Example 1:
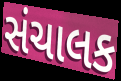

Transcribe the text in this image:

સંચાલક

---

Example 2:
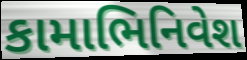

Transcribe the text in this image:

કામાભિનિવેશ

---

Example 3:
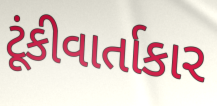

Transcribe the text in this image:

ટૂંકીવાર્તાકાર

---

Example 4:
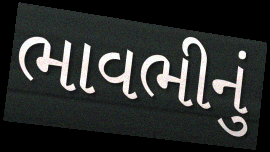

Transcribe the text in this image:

ભાવભીનું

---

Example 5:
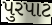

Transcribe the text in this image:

પુરપાટ